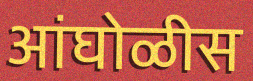
आंघोळीस